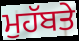
ਮੁਹੱਬਤੇ